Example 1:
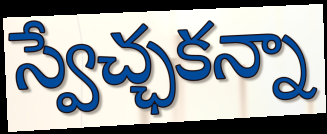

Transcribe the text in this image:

స్వేచ్ఛకన్నా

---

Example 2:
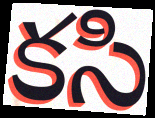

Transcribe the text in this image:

కసి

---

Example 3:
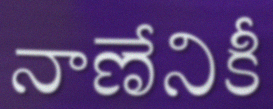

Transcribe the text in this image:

నాణేనికీ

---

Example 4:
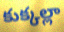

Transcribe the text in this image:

కుక్కల్లా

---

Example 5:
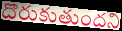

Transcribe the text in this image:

దొరుకుతుందని